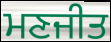
ਮਣਜੀਤ